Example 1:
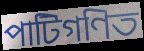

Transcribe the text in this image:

পাটিগণিত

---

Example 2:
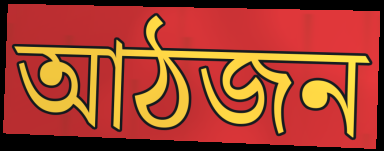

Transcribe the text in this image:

আঠজন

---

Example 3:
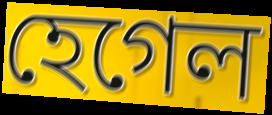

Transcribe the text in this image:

হেগেল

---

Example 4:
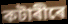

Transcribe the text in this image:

কটাৰীৰে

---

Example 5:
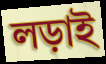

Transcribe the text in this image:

লড়াই